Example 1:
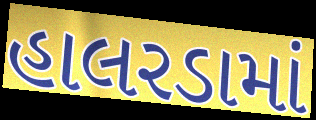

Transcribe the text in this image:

હાલરડામાં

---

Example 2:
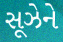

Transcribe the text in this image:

સૂઝેને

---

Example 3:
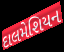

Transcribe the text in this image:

દાલમેશિયન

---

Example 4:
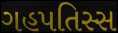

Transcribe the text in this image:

ગહપતિસ્સ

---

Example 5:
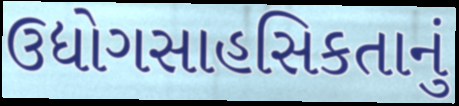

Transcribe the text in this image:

ઉદ્યોગસાહસિકતાનું